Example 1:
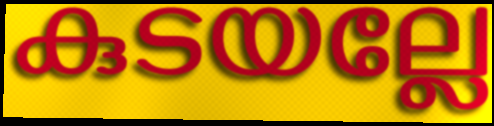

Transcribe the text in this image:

കുടയല്ലേ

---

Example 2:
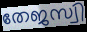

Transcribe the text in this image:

തേജസ്വി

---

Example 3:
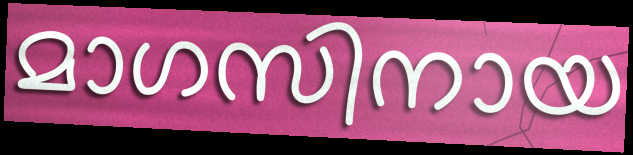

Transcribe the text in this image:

മാഗസിനായ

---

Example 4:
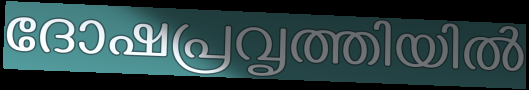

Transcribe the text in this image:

ദോഷപ്രവൃത്തിയിൽ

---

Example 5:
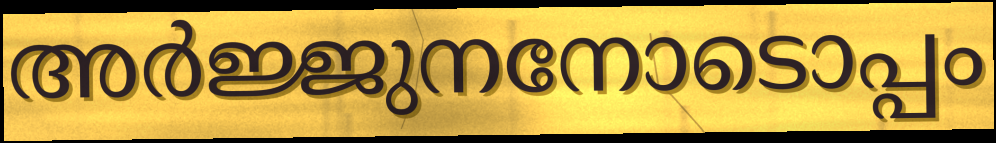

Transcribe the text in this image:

അർജ്ജുനനോടൊപ്പം